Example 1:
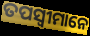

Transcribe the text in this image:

ତପସ୍ୱୀମାନେ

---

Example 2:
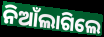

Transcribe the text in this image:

ନିଆଁଲାଗିଲେ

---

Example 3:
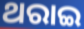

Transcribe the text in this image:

ଥରାଇ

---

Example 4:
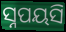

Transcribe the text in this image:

ସ୍ନପୟସି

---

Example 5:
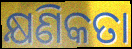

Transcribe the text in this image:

କ୍ଷଣିକତା